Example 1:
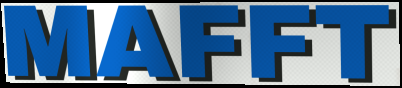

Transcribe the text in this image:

MAFFT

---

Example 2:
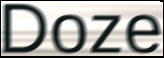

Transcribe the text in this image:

Doze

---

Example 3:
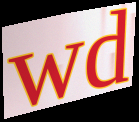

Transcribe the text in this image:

wd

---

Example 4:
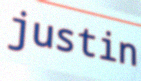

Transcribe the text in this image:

justin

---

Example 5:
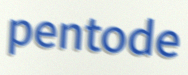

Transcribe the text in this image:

pentode